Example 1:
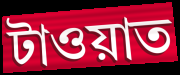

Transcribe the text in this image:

টাওয়াত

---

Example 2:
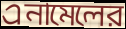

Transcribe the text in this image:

এনামেলের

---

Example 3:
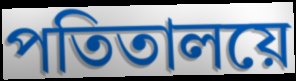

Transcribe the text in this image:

পতিতালয়ে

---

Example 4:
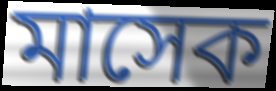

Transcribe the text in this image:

মাসেক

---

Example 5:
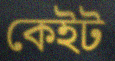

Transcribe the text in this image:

কেইট